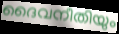
ദൈവനീതിയും